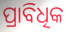
ପ୍ରାବିଧିକ